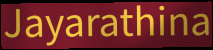
Jayarathina